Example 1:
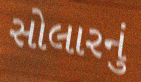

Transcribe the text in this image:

સોલારનું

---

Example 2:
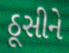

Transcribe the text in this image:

ઠૂસીને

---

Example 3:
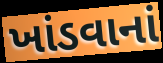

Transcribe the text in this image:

ખાંડવાનાં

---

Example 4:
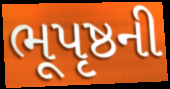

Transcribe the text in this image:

ભૂપૃષ્ઠની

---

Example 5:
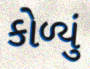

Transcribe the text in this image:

કોળ્યું